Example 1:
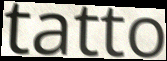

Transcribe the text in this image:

tatto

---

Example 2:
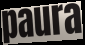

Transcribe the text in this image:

paura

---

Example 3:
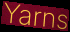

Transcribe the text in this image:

Yarns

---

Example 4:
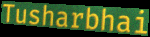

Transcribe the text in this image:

Tusharbhai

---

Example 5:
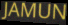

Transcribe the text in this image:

JAMUN